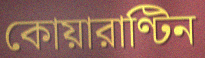
কোয়ারাণ্টিন